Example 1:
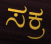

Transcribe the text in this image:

ಸಕ್ರ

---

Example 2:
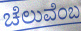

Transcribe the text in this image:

ಚೆಲುವೆಂಬ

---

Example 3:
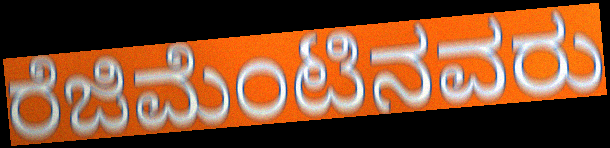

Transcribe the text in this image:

ರೆಜಿಮೆಂಟಿನವರು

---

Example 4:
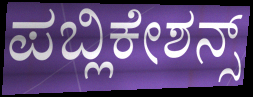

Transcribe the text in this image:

ಪಬ್ಲಿಕೇಶನ್ಸ್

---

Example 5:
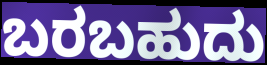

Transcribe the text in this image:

ಬರಬಹುದು